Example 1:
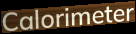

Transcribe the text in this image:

Calorimeter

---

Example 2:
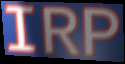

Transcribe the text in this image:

IRP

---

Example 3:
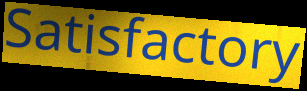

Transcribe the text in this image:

Satisfactory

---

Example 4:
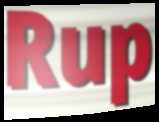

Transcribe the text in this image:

Rup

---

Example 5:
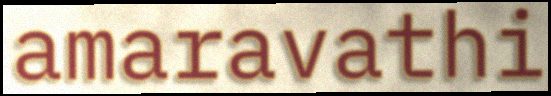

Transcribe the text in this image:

amaravathi